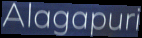
Alagapuri